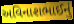
અવિનાશભાઈનું